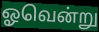
ஓவென்று